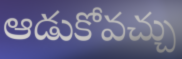
ఆడుకోవచ్చు